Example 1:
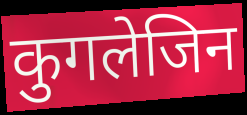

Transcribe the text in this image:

कुगलेजिन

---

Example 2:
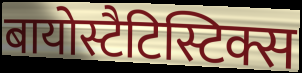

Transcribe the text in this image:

बायोस्टैटिस्टिक्स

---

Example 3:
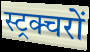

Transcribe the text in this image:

स्ट्रक्चरों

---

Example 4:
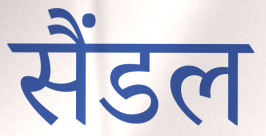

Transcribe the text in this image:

सैंडल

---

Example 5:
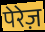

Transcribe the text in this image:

पेरेज़